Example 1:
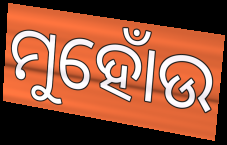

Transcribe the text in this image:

ମୁହୋଁଉ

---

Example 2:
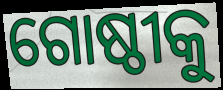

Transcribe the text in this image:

ଗୋଷ୍ଠୀକୁ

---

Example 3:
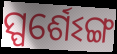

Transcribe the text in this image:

ସ୍ପର୍ଶେଽଙ୍ଗ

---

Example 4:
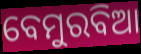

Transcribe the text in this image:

ବେମୁରବିଆ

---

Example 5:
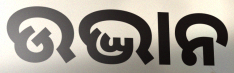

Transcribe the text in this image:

ଉଦ୍ଭାନ